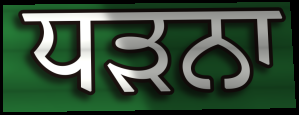
ਧੜਨਾ